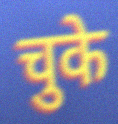
चुके